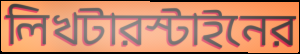
লিখটারস্টাইনের